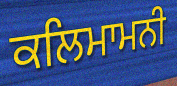
ਕਲਿਮਾਮਨੀ